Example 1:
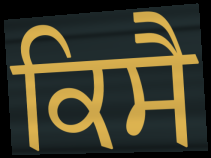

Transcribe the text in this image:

ਕਿਸੈ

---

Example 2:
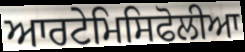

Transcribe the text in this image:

ਆਰਟੇਮਿਸਿਫੋਲੀਆ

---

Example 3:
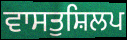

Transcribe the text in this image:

ਵਾਸਤੁਸ਼ਿਲਪ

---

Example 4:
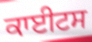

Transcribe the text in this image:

ਕਾਈਟਸ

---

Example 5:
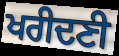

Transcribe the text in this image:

ਖਰੀਦਣੀ